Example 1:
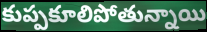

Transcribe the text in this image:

కుప్పకూలిపోతున్నాయి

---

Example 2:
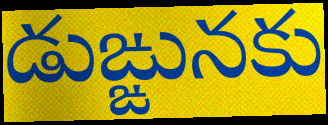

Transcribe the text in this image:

డుఙ్ఙునకు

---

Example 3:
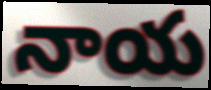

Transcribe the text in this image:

నాయ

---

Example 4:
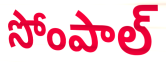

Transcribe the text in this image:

సోంపాల్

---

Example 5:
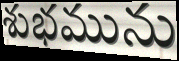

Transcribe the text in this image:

శుభమును